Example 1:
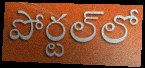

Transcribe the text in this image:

పోర్టల్‌లో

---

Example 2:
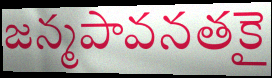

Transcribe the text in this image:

జన్మపావనతకై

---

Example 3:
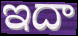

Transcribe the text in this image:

ఇదా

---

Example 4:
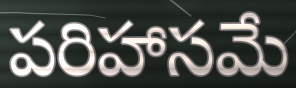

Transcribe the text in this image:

పరిహాసమే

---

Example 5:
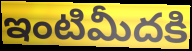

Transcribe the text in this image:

ఇంటిమీదకి